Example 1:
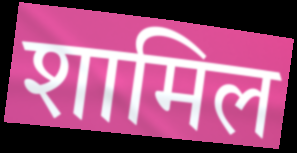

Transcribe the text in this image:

शामिल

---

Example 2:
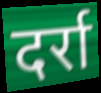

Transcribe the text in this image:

दर्रा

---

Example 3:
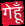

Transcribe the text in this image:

गेहूँ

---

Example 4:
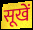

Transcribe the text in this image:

सूखें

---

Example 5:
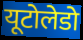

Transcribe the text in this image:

यूटोलेडो